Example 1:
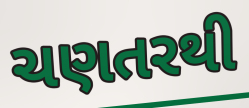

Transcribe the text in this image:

ચણતરથી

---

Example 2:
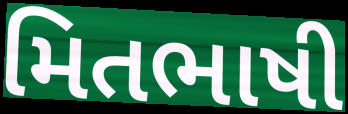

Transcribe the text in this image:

મિતભાષી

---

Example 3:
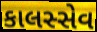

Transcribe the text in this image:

કાલસ્સેવ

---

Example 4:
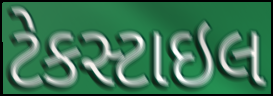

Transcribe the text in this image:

ટેકસ્ટાઇલ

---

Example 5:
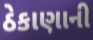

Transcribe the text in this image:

ઠેકાણાની